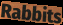
Rabbits